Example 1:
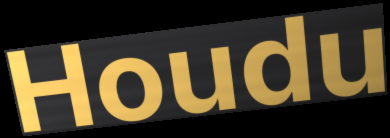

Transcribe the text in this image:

Houdu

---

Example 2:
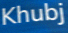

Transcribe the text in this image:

Khubj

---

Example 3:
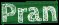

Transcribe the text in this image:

Pran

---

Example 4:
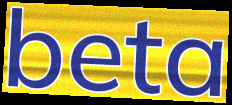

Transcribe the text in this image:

beta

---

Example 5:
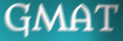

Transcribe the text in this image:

GMAT